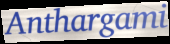
Anthargami